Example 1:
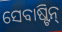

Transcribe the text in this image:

ସେବାଷ୍ଟିନ୍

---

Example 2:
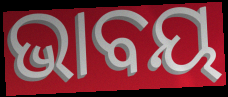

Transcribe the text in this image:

ଭାବୟ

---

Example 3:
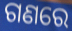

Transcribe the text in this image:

ଗଣରେ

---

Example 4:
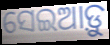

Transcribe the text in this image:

ସେଇଆଡ଼ୁ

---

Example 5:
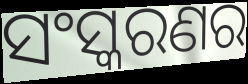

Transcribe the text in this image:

ସଂସ୍କରଣର